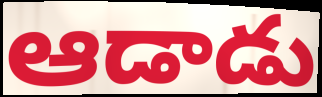
ఆడాడు